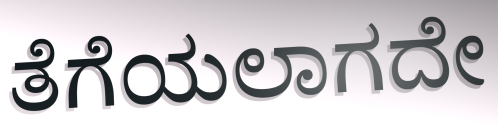
ತೆಗೆಯಲಾಗದೇ